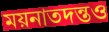
ময়নাতদন্তও